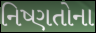
નિષ્ણતોના